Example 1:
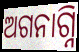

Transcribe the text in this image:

ଅଗନାଗ୍ନି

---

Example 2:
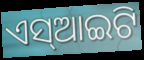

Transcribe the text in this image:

ଏସ୍ଆଇଟି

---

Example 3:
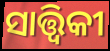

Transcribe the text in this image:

ସାତ୍ତ୍ୱିକୀ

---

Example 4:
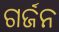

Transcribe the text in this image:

ଗର୍ଜନ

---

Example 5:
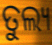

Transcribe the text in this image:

ତୁଲ୍ୟ